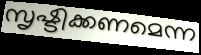
സൃഷ്ടിക്കണമെന്ന